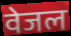
वेजल